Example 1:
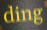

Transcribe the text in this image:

ding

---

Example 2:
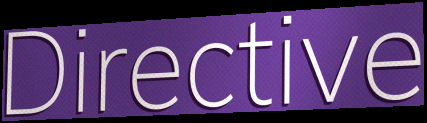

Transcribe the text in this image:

Directive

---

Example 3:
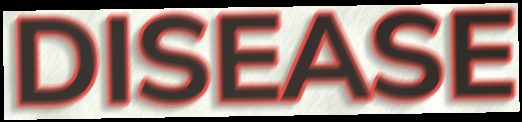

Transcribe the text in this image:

DISEASE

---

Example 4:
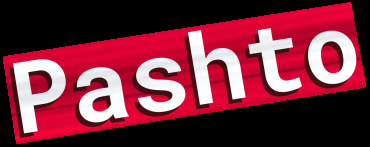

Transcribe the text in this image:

Pashto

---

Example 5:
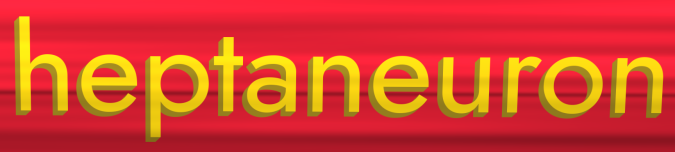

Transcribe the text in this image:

heptaneuron